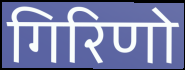
गिरिणो